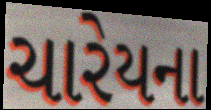
ચારેયના